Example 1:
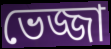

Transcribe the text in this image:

ভেজ্জা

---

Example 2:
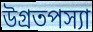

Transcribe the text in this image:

উগ্রতপস্যা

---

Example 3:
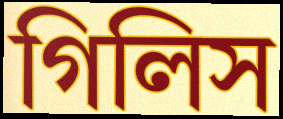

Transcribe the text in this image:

গিলিস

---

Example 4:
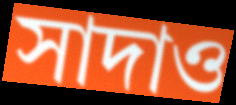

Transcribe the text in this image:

সাদাও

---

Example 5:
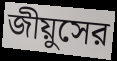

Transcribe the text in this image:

জীয়ুসের